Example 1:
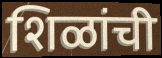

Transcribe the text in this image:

शिळांची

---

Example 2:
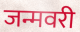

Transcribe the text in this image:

जन्मवरी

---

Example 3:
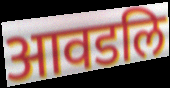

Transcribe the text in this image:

आवडलि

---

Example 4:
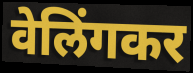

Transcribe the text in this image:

वेलिंगकर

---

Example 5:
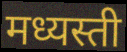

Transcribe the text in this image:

मध्यस्ती